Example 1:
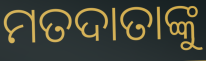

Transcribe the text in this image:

ମତଦାତାଙ୍କୁ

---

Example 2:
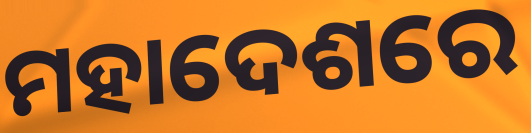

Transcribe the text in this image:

ମହାଦେଶରେ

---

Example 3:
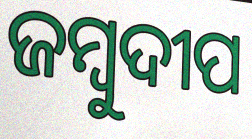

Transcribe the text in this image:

ଜମ୍ବୁଦୀପ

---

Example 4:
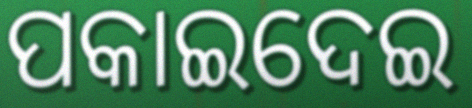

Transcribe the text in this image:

ପକାଇଦେଇ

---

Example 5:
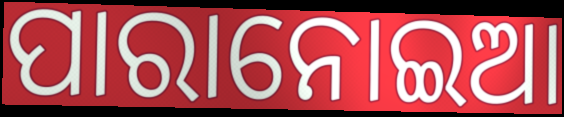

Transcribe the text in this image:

ପାରାନୋଇଆ